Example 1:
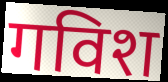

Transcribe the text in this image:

गविश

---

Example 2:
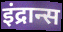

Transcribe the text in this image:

इंद्रान्स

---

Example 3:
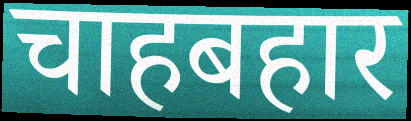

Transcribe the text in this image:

चाहबहार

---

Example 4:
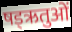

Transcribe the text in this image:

षड्ऋतुओं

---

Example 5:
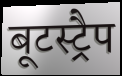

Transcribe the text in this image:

बूटस्ट्रैप